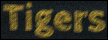
Tigers